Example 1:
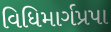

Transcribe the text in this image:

વિધિમાર્ગપ્રપા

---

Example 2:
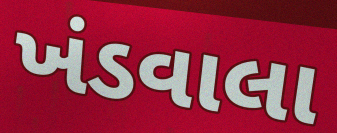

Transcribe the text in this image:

ખંડવાલા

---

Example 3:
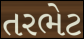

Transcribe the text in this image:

તરભેટ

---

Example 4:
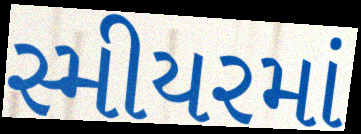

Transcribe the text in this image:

સ્મીયરમાં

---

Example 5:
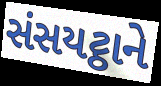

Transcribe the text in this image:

સંસયટ્ઠાને